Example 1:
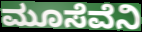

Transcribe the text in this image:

ಮೂಸೆವೆನಿ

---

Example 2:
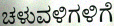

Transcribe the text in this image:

ಚಳುವಳಿಗಳಿಗೆ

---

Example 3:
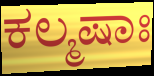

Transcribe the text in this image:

ಕಲ್ಮಷಾಃ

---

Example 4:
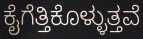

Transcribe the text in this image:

ಕೈಗೆತ್ತಿಕೊಳ್ಳುತ್ತವೆ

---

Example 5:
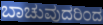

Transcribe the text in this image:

ಬಾಚುವುದರಿಂದ